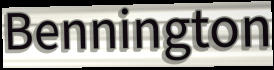
Bennington